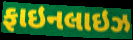
ફાઇનલાઇઝ